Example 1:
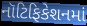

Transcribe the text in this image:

નૉટિફિકેશનમાં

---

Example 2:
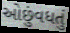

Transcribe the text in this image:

ઓછુંવધતું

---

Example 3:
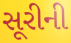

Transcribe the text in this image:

સૂરીની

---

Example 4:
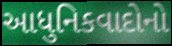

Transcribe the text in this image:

આધુનિકવાદોનો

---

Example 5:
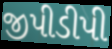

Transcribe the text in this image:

જીપીડીપી